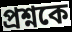
প্রশ্নকে